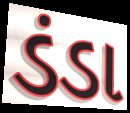
ડંડા